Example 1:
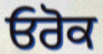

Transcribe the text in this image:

ਓਰੋਕ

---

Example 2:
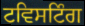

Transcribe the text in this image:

ਟਵਿਸਟਿੰਗ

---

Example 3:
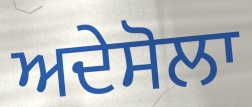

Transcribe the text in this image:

ਅਦੇਸੋਲਾ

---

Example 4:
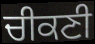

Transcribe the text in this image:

ਚੀਕਣੀ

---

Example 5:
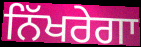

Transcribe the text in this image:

ਨਿੱਖਰੇਗਾ